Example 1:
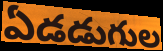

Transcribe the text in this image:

ఏడడుగుల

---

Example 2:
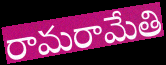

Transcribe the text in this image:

రామరామేతి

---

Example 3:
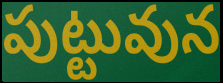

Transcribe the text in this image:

పుట్టువున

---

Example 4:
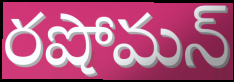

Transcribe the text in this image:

రషోమన్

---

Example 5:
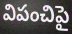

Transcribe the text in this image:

విపంచిపై